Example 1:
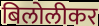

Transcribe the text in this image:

बिलोलीकर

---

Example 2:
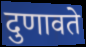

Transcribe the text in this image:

दुणावते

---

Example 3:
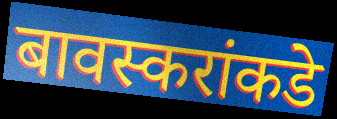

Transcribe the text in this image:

बावस्करांकडे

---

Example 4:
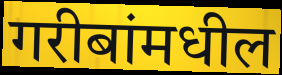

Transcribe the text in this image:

गरीबांमधील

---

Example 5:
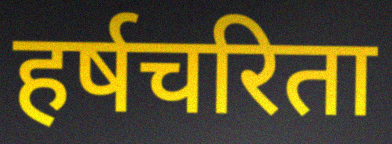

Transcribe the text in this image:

हर्षचरिता